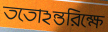
ততোঽন্তরিক্ষে